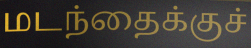
மடந்தைக்குச்